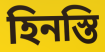
হিনস্তি